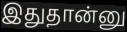
இதுதான்னு